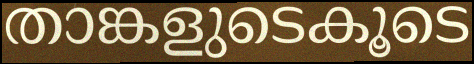
താങ്കളുടെകൂടെ